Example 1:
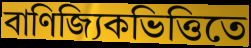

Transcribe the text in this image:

বাণিজ্যিকভিত্তিতে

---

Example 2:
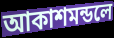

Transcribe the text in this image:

আকাশমন্ডলে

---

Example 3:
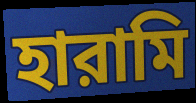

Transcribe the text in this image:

হারামি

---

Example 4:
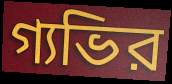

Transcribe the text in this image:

গ্যভির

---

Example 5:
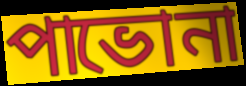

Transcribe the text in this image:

পাভোনা